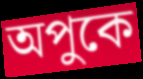
অপুকে